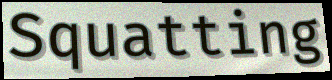
Squatting